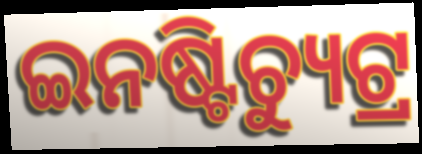
ଇନଷ୍ଟିଚ୍ୟୁଟ୍ର